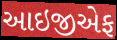
આઇજીએફ